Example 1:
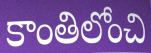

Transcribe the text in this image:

కాంతిలోంచి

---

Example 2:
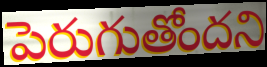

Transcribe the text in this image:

పెరుగుతోందని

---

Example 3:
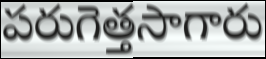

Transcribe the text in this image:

పరుగెత్తసాగారు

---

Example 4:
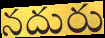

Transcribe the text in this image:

నదురు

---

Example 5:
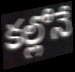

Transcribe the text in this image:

కల్లోనే